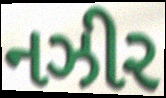
નઝીર